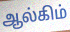
ஆல்கிம்